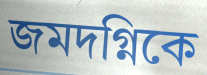
জমদগ্নিকে